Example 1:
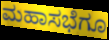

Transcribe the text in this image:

ಮಹಾಸಭೆಗೂ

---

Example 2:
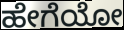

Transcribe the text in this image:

ಹೇಗೆಯೋ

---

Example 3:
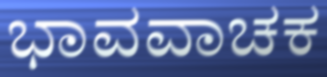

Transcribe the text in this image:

ಭಾವವಾಚಕ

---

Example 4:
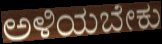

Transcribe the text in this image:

ಅಳಿಯಬೇಕು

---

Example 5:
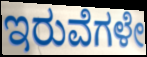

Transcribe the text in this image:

ಇರುವೆಗಳೇ